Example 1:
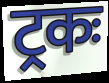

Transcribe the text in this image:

ट्रकः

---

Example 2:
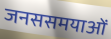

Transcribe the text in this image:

जनससमयाओं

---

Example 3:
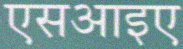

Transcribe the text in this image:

एसआइए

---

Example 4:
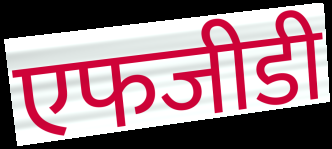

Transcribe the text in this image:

एफजीडी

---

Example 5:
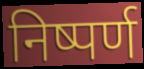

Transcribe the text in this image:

निष्पर्ण